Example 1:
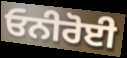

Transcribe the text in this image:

ਓਨੀਰੋਈ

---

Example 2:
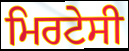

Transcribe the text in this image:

ਮਿਰਟੇਸੀ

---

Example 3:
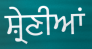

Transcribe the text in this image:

ਸ਼੍ਰੇਣੀਆਂ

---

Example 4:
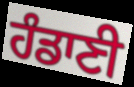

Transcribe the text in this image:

ਹੰਡਾਣੀ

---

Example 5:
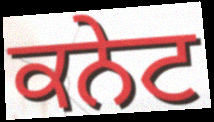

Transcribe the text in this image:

ਕਨੇਟ